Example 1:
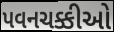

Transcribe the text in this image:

પવનચક્કીઓ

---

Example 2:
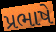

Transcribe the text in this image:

પ્રભાષે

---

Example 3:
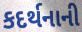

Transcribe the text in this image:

કદર્થનાની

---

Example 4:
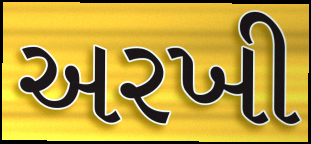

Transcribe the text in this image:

અરખી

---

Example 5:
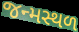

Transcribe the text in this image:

જન્મસ્થળ